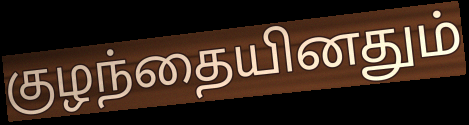
குழந்தையினதும்